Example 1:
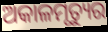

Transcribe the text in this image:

ଅକାଳମୃତ୍ୟୁର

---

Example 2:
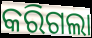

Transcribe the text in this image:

କରିଗଲା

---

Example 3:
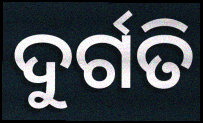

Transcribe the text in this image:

ଦୁର୍ଗତି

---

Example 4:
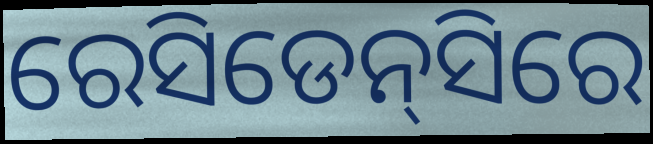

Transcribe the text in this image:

ରେସିଡେନ୍‌ସିରେ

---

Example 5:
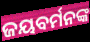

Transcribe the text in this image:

ଜୟବର୍ମନଙ୍କ